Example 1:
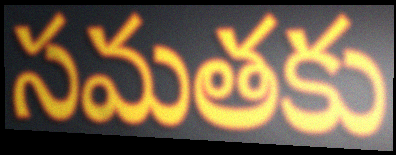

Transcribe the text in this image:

సమతకు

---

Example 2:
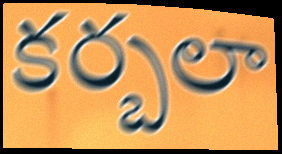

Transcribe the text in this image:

కర్బలా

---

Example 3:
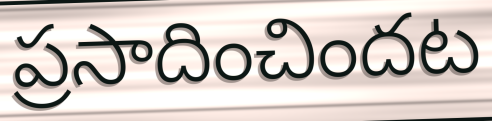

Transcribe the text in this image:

ప్రసాదించిందట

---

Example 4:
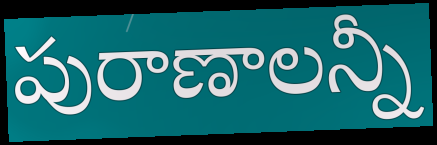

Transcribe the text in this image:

పురాణాలన్నీ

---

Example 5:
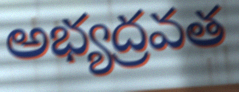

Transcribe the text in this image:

అభ్యద్రవత